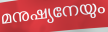
മനുഷ്യനേയും